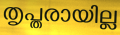
തൃപ്തരായില്ല